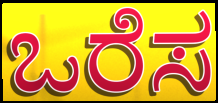
ಒರೆಸ